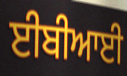
ਈਬੀਆਈ